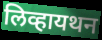
लिव्हायथन